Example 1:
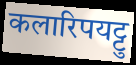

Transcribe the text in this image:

कलारिपयट्टु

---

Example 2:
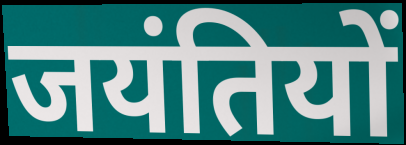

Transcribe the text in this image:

जयंतियों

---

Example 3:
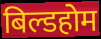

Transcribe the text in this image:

बिल्डहोम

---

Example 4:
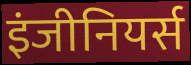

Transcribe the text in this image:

इंजीनियर्स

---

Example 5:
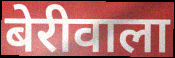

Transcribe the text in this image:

बेरीवाला